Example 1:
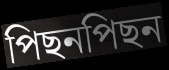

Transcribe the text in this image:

পিছনপিছন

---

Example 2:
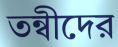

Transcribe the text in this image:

তন্বীদের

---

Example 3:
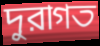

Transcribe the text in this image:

দুরাগত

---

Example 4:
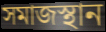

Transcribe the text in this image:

সমাজস্থান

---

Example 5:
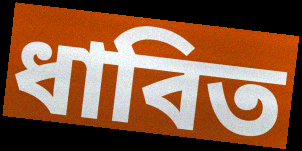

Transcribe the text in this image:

ধাবিত